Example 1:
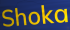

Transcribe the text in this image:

Shoka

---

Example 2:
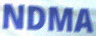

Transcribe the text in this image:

NDMA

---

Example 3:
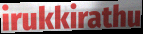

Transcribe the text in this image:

irukkirathu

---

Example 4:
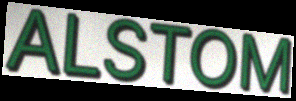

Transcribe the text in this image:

ALSTOM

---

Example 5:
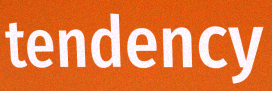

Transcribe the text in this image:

tendency